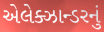
એલેક્ઝાન્ડરનું